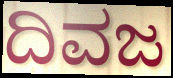
ದಿವಜ